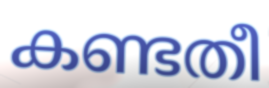
കണ്ടതീ